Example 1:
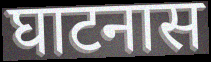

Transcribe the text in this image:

घाटनास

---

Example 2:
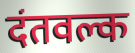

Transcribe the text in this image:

दंतवल्क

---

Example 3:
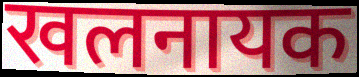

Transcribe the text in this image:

खलनायक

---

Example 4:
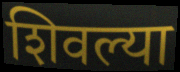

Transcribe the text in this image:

शिवल्या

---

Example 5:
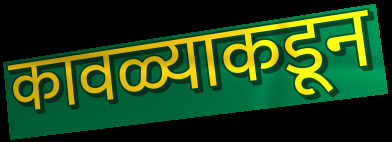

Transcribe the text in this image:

कावळ्याकडून